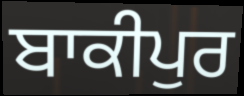
ਬਾਕੀਪੁਰ